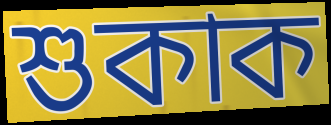
শুকাক